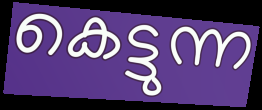
കെട്ടുന്ന